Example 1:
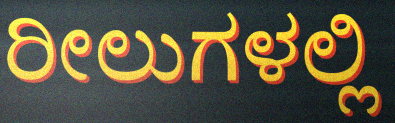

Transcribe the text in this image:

ರೀಲುಗಳಲ್ಲಿ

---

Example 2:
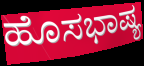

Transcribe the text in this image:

ಹೊಸಭಾಷ್ಯ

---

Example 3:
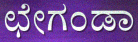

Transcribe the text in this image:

ಛೇಗಂಡಾ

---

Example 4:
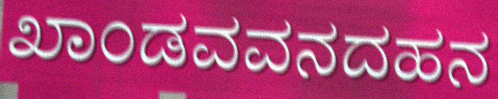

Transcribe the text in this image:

ಖಾಂಡವವನದಹನ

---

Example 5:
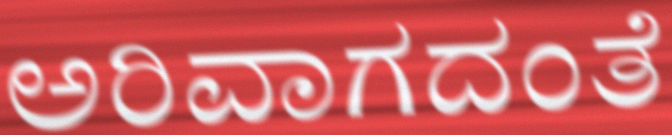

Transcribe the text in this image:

ಅರಿವಾಗದಂತೆ